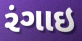
રંગાઇ